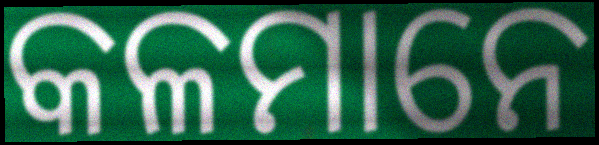
କଳମାନେ